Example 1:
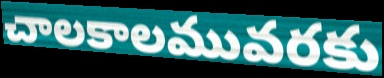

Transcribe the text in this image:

చాలకాలమువరకు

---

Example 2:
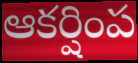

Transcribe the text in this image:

ఆకర్షింప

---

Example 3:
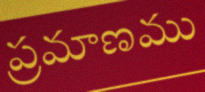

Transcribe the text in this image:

ప్రమాణము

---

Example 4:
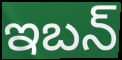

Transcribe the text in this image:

ఇబన్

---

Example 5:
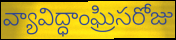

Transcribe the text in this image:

వ్యావిద్ధాంఘ్రిసరోజు